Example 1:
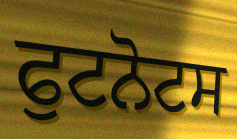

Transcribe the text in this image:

ਫੁਟਨੋਟਸ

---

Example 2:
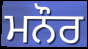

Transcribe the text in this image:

ਮਨੌਰ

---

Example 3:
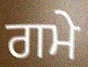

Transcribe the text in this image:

ਗਮੇ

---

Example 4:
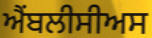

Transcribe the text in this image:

ਐਂਬਲੀਸੀਅਸ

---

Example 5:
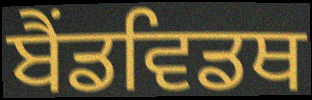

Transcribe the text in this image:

ਬੈਂਡਵਿਡਥ